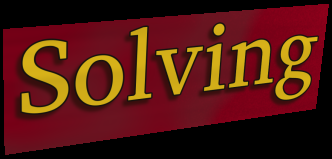
Solving